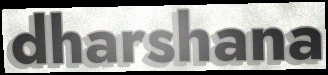
dharshana